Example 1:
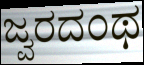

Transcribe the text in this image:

ಜ್ವರದಂಥ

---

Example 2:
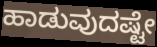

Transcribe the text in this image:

ಹಾಡುವುದಷ್ಟೇ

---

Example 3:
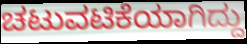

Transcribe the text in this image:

ಚಟುವಟಿಕೆಯಾಗಿದ್ದು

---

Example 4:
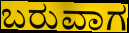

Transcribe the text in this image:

ಬರುವಾಗ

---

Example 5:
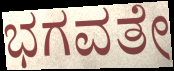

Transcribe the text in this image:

ಭಗವತೇ